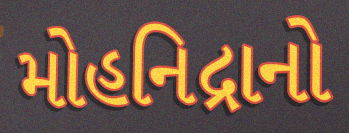
મોહનિદ્રાનો